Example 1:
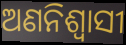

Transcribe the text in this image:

ଅଣନିଶ୍ୱାସୀ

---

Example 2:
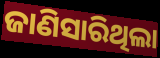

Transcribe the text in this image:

ଜାଣିସାରିଥିଲା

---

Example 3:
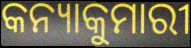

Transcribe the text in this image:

କନ୍ୟାକୁମାରୀ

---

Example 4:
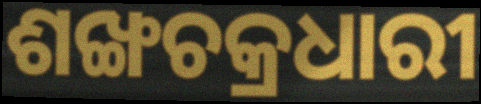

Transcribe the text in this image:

ଶଙ୍ଖଚକ୍ରଧାରୀ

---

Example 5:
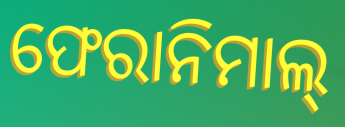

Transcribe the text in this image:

ଫେରାନିମାଲ୍